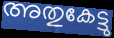
അതുകേട്ടു